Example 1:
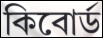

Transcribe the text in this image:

কিবোর্ড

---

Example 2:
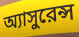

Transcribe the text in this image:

অ্যাসুরেন্স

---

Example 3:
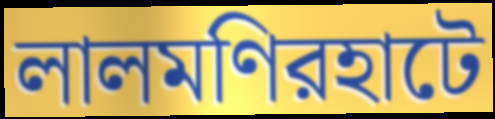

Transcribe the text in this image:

লালমণিরহাটে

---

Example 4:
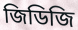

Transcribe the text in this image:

জিডিজি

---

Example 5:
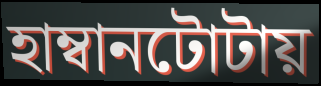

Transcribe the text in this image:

হাম্বানটোটায়